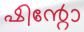
ഷിന്റോ